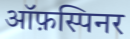
ऑफ़स्पिनर